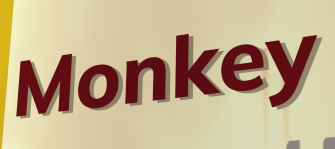
Monkey